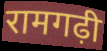
रामगढ़ी